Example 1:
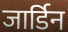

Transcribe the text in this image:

जार्डिन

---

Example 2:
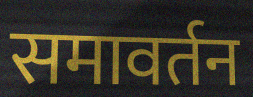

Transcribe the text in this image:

समावर्तन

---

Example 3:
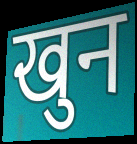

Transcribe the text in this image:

खुन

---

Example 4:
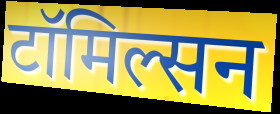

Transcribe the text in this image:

टॉमिल्सन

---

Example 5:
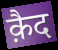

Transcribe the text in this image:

क़ैद